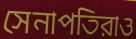
সেনাপতিরাও